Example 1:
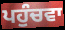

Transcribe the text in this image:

ਪਹੁੰਚਵਾ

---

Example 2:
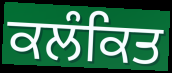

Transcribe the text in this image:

ਕਲੰਕਿਤ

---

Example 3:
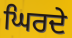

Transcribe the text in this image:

ਘਿਰਦੇ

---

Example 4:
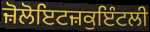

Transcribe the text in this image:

ਜ਼ੋਲੋਇਟਜ਼ਕੁਇੰਟਲੀ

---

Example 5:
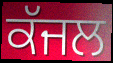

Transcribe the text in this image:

ਕੱਜਲ